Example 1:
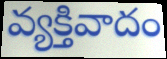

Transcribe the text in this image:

వ్యక్తివాదం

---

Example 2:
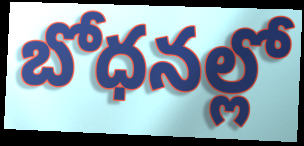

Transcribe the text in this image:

బోధనల్లో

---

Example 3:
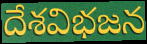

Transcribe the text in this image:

దేశవిభజన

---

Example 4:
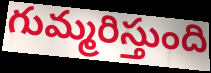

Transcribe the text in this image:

గుమ్మరిస్తుంది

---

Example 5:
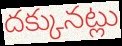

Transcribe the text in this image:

దక్కునట్లు